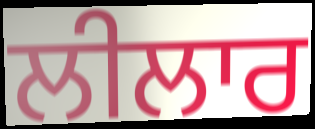
ਲੀਲਾਰ